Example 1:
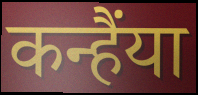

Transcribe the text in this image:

कन्हैंया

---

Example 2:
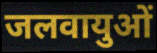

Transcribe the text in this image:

जलवायुओं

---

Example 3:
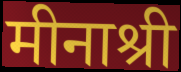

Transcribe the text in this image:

मीनाश्री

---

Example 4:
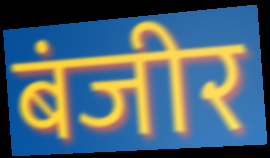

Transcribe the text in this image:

बंजीर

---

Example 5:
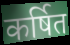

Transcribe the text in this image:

कर्षित